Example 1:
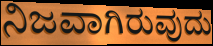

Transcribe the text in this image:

ನಿಜವಾಗಿರುವುದು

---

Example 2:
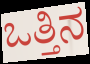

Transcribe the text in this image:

ಒತ್ತಿನ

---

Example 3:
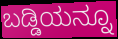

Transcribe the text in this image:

ಬಡ್ಡಿಯನ್ನೂ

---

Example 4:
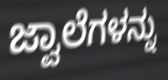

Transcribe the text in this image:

ಜ್ವಾಲೆಗಳನ್ನು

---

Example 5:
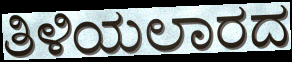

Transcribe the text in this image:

ತಿಳಿಯಲಾರದ